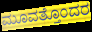
ಮೂವತ್ತೊಂದರ